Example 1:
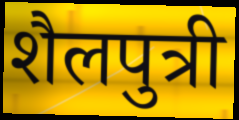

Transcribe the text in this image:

शैलपुत्री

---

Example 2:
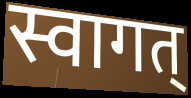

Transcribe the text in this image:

स्वागत्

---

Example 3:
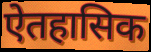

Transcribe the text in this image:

ऐतहासिक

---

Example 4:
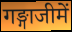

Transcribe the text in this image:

गङ्गाजीमें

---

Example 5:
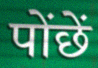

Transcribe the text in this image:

पोंछें